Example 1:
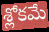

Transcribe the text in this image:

శ్లోకమే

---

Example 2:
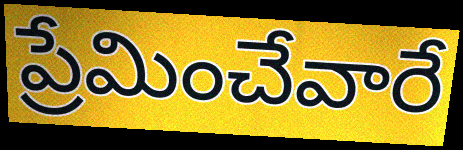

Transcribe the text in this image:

ప్రేమించేవారే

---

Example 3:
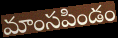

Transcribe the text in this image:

మాంసపిండం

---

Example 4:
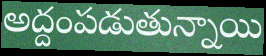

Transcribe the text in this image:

అద్దంపడుతున్నాయి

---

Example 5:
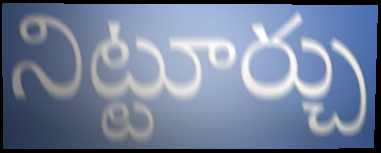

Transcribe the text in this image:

నిట్టూర్చు